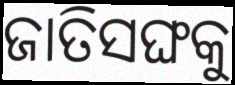
ଜାତିସଙ୍ଘକୁ